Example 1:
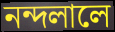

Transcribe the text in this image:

নন্দলালে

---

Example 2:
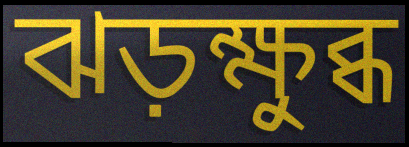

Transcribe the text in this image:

ঝড়ক্ষুব্ধ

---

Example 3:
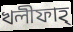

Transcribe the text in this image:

খলীফাহ্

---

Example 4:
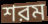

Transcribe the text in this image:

শরম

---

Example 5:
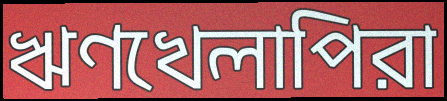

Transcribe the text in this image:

ঋণখেলাপিরা